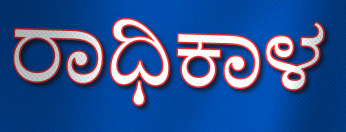
ರಾಧಿಕಾಳ